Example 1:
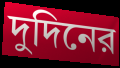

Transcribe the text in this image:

দুদিনের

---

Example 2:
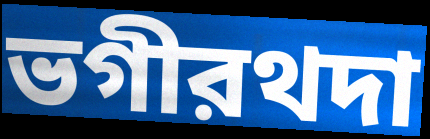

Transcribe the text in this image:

ভগীরথদা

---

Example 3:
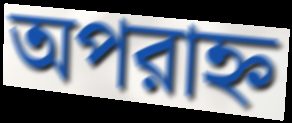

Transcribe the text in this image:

অপরাহ্ন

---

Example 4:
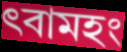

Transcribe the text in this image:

ৎবামহং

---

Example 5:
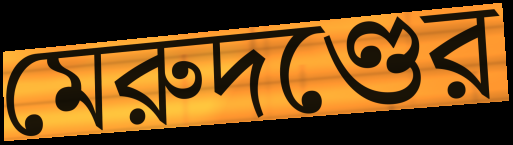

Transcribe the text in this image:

মেরুদণ্ডের